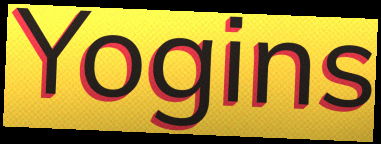
Yogins